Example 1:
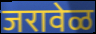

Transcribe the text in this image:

जरावेळ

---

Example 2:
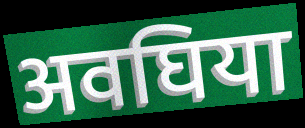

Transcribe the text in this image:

अवघिया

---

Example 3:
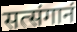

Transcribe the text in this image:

सत्संगानं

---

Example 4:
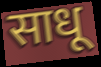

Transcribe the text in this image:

साधू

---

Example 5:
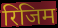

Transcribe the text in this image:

रिजिम